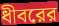
ধীবরের